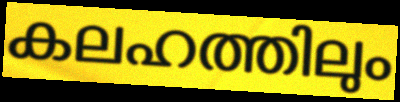
കലഹത്തിലും